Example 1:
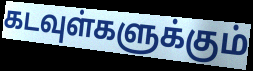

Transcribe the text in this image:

கடவுள்களுக்கும்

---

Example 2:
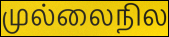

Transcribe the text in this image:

முல்லைநில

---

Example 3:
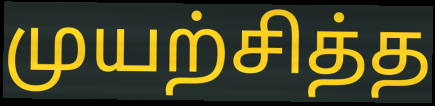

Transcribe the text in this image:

முயற்சித்த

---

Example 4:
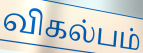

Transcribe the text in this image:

விகல்பம்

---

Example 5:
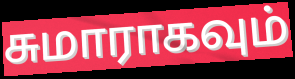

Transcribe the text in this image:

சுமாராகவும்